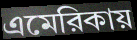
এমেরিকায়